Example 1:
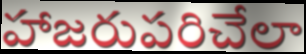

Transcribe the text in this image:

హాజరుపరిచేలా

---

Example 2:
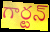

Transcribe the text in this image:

గార్టన్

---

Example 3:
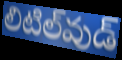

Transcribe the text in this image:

లిటిల్‌వుడ్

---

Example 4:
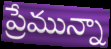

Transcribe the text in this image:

ప్రేమున్నా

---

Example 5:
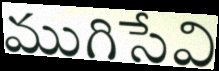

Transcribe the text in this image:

ముగిసేవి